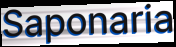
Saponaria